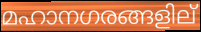
മഹാനഗരങ്ങളില്